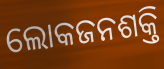
ଲୋକଜନଶକ୍ତି